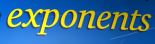
exponents